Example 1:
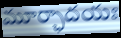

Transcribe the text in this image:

మూర్ఛాదయః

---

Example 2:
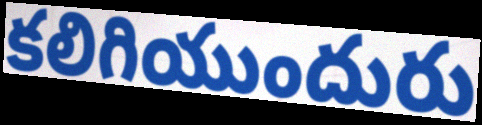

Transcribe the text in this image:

కలిగియుందురు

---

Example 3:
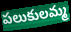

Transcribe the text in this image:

పలుకులమ్మ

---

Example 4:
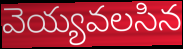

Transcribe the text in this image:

వెయ్యవలసిన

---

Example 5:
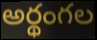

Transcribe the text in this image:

అర్థంగల